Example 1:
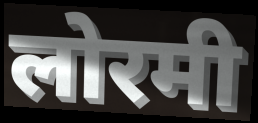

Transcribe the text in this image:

लोरमी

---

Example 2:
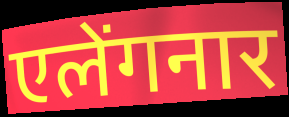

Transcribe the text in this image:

एलेंगनार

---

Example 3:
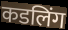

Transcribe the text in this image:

कडलिंग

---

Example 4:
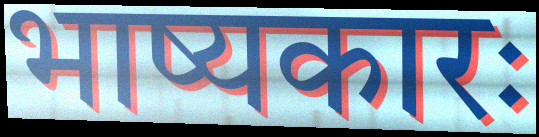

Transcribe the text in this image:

भाष्यकारः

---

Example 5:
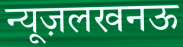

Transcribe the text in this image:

न्यूज़लखनऊ